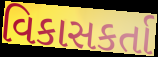
વિકાસકર્તા